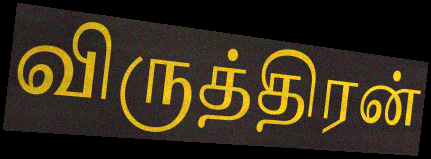
விருத்திரன்